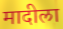
मादीला